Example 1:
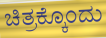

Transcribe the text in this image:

ಚಿತ್ರಕ್ಕೊಂದು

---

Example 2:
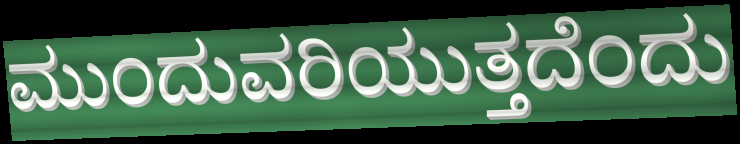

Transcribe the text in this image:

ಮುಂದುವರಿಯುತ್ತದೆಂದು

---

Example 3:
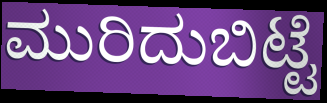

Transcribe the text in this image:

ಮುರಿದುಬಿಟ್ಟೆ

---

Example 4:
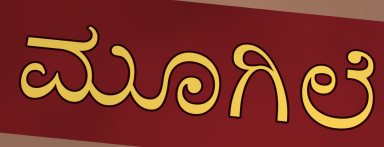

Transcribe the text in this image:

ಮೂಗಿಲೆ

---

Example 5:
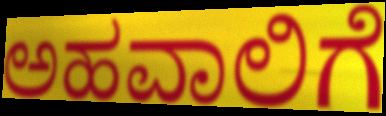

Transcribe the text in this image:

ಅಹವಾಲಿಗೆ